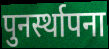
पुनर्स्थापना